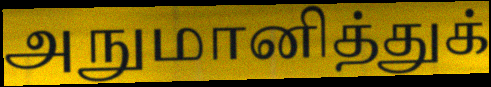
அநுமானித்துக்